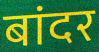
बांदर